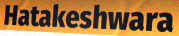
Hatakeshwara